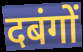
दबंगों